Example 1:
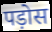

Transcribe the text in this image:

पड़ोस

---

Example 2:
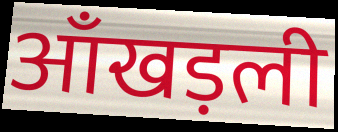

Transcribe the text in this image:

आँखड़ली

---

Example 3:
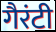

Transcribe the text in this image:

गैरंटी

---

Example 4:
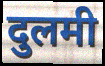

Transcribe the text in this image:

दुलमी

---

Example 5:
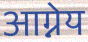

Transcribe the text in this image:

आग्नेय